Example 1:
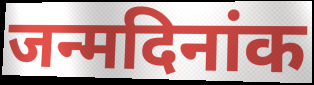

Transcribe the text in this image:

जन्मदिनांक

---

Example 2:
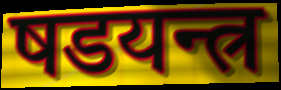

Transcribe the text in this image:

षडयन्त्र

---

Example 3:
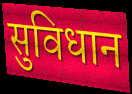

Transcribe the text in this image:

सुविधान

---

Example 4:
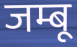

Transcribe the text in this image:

जम्बू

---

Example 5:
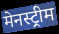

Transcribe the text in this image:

मेनस्ट्रीम